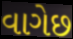
વાગેછ